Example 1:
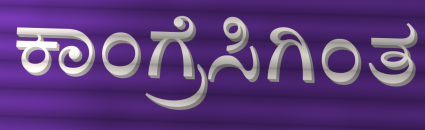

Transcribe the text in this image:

ಕಾಂಗ್ರೆಸಿಗಿಂತ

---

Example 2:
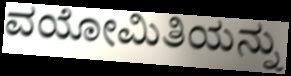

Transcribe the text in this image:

ವಯೋಮಿತಿಯನ್ನು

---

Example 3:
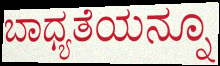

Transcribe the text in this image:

ಬಾಧ್ಯತೆಯನ್ನೂ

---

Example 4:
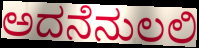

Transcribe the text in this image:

ಅದನೆನುಲಲಿ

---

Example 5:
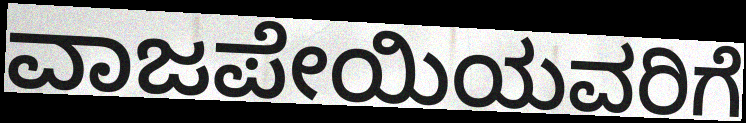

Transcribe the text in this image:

ವಾಜಪೇಯಿಯವರಿಗೆ